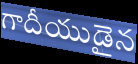
గాదీయుడైన